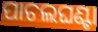
ପାଚଲଘଣ୍ଟା